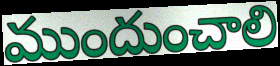
ముందుంచాలి